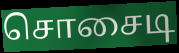
சொசைடி